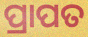
ପ୍ରାପତ